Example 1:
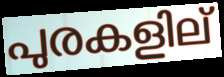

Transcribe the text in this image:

പുരകളില്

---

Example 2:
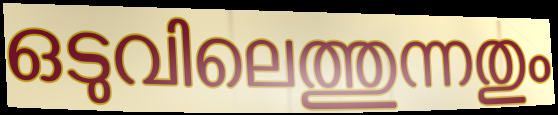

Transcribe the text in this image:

ഒടുവിലെത്തുന്നതും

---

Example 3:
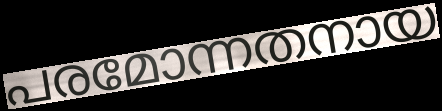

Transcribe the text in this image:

പരമോന്നതനായ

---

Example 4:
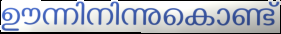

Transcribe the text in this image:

ഊന്നിനിന്നുകൊണ്ട്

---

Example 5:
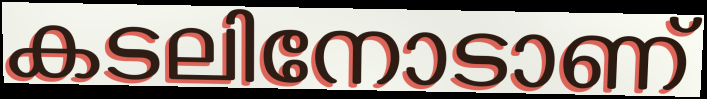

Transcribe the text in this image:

കടലിനോടാണ്